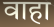
वाहा